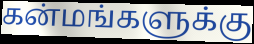
கன்மங்களுக்கு